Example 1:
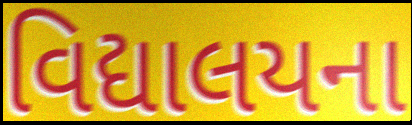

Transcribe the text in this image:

વિદ્યાલયના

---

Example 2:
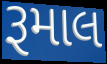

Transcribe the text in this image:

રૂમાલ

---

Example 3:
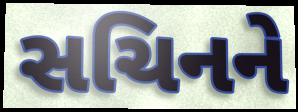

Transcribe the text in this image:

સચિનને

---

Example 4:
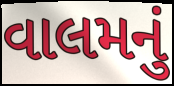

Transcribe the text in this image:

વાલમનું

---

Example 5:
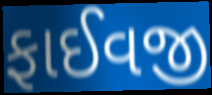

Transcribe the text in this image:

ફાઈવજી